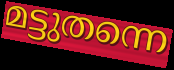
മട്ടുതന്നെ